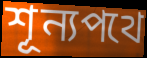
শূন্যপথে